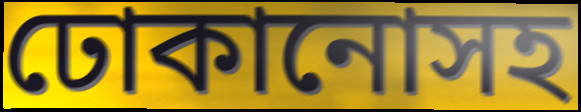
ঢোকানোসহ